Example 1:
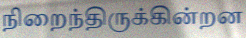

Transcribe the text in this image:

நிறைந்திருக்கின்றன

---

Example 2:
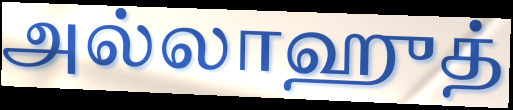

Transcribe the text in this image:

அல்லாஹுத்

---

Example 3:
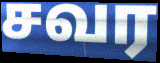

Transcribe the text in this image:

சவர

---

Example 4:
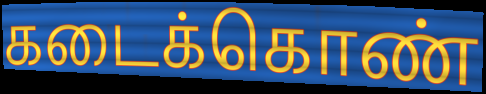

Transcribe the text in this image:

கடைக்கொண்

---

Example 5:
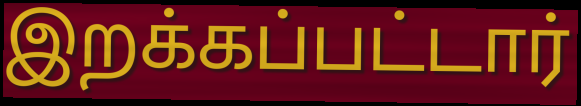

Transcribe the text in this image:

இறக்கப்பட்டார்